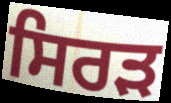
ਸਿਰਡ਼